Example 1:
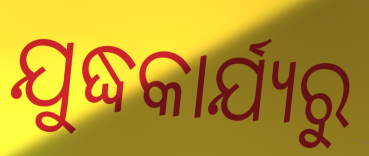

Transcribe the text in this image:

ଯୁଦ୍ଧକାର୍ଯ୍ୟରୁ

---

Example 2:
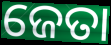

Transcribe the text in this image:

ଜେତା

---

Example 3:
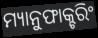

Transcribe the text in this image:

ମ୍ୟାନୁଫାକ୍ଚରିଂ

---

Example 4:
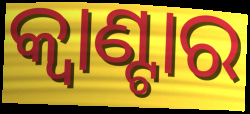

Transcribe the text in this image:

କ୍ୱାଣ୍ଟାର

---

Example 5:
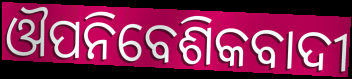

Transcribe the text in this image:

ଔପନିବେଶିକବାଦୀ